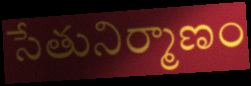
సేతునిర్మాణం